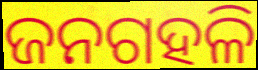
ଜନଗହଳି